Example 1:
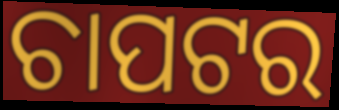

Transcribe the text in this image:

ଚାପଟର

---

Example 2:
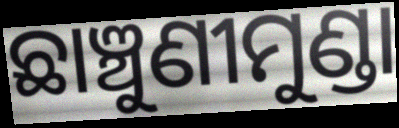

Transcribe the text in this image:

ଛାଞ୍ଚୁଣୀମୁଣ୍ଡା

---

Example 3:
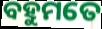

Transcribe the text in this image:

ବହୁମତେ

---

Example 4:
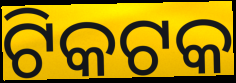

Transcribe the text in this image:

ଟିକଟକ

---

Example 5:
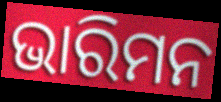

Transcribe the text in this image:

ଭାରିମନ